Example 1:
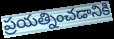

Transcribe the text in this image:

ప్రయత్నించడానికి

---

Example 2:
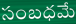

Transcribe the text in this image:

సంబధమే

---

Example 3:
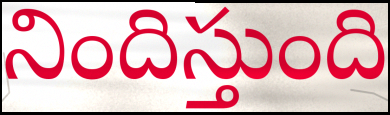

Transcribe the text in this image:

నిందిస్తుంది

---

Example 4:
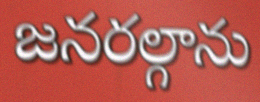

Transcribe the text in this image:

జనరల్గాను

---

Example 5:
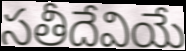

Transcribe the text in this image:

సతీదేవియే